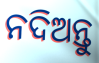
ନଦିଅନ୍ତୁ